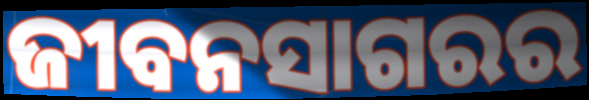
ଜୀବନସାଗରର